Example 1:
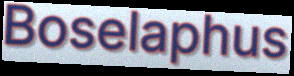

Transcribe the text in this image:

Boselaphus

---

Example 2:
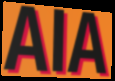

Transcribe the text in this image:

AIA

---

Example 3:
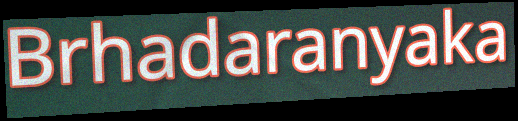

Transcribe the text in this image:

Brhadaranyaka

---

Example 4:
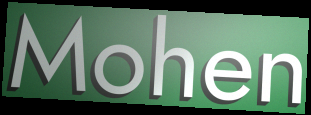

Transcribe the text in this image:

Mohen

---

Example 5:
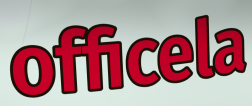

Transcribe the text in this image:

officela